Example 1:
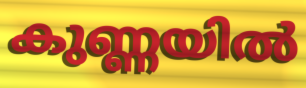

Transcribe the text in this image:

കുണ്ണയിൽ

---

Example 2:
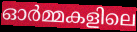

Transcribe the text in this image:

ഓർമ്മകളിലെ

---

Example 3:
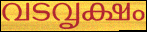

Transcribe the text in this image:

വടവൃക്ഷം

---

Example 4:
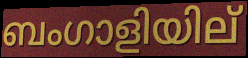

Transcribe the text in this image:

ബംഗാളിയില്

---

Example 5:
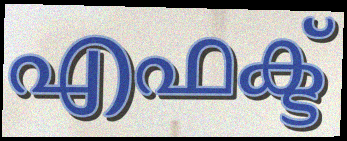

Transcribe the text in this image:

എഫക്ട്